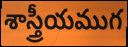
శాస్త్రీయముగ